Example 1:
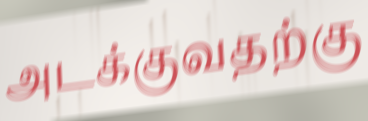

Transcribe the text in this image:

அடக்குவதற்கு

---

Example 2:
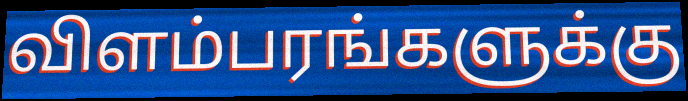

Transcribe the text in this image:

விளம்பரங்களுக்கு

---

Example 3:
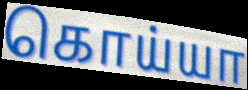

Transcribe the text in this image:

கொய்யா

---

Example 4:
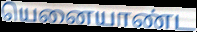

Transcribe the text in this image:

யெனையாண்ட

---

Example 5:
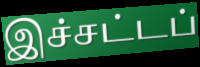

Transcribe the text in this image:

இச்சட்டப்